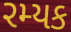
રમ્યક